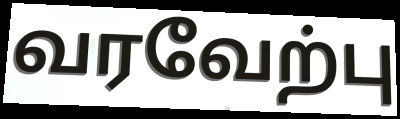
வரவேற்பு